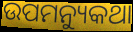
ଉପମନ୍ୟୁକଥା